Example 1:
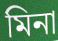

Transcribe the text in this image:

মিনা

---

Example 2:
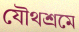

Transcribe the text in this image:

যৌথশ্রমে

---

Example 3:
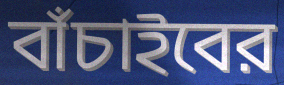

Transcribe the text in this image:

বাঁচাইবের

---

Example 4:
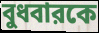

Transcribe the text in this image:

বুধবারকে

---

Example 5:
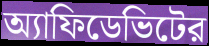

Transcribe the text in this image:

অ্যাফিডেভিটের